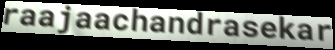
raajaachandrasekar